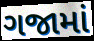
ગજામાં